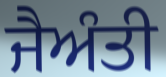
ਜੈਅੰਤੀ